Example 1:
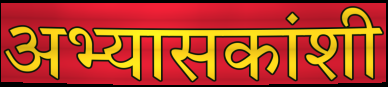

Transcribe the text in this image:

अभ्यासकांशी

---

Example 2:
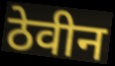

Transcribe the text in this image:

ठेवीन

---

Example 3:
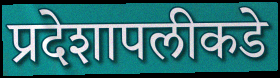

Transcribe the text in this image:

प्रदेशापलीकडे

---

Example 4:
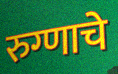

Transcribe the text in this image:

रुग्‍णाचे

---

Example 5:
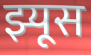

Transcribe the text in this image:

झ्यूस